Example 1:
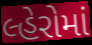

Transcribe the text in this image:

લ્હેરોમાં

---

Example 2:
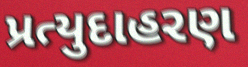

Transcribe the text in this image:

પ્રત્યુદાહરણ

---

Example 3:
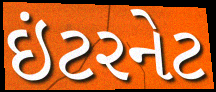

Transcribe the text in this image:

ઇંટરનેટ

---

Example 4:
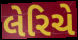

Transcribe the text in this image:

લેરિચે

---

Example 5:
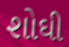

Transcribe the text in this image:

શોઘી